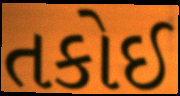
તકોઈ